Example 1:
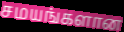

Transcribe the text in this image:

சமயங்களான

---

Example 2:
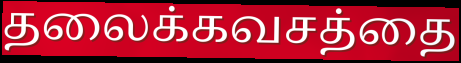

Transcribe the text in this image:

தலைக்கவசத்தை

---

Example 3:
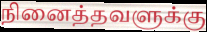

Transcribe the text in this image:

நினைத்தவளுக்கு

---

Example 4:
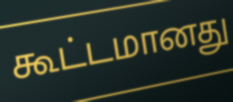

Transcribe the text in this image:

கூட்டமானது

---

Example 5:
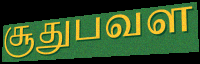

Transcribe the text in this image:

சூதுபவள